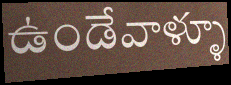
ఉండేవాళ్ళూ